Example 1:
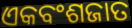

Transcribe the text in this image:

ଏକବଂଶଜାତ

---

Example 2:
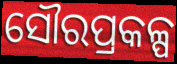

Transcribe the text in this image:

ସୌରପ୍ରକଳ୍ପ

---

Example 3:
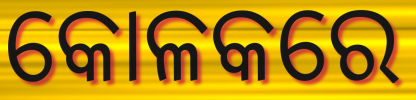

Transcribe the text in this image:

କୋଳକରେ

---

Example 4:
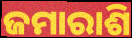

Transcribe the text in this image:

ଜମାରାଶି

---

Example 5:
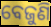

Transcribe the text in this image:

ବେଜୁଣି